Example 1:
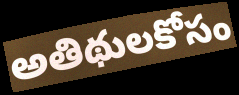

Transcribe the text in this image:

అతిథులకోసం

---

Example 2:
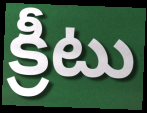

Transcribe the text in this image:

క్రీటు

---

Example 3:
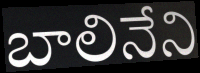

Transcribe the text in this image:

బాలినేని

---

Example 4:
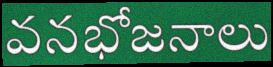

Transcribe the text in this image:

వనభోజనాలు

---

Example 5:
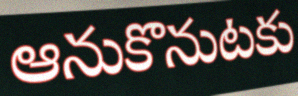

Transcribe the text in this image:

ఆనుకొనుటకు